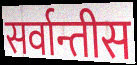
सर्वान्तीस